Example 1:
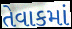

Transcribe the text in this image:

તેવાકમાં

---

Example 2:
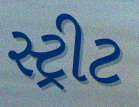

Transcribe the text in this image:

સ્ટ્રીટ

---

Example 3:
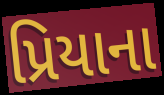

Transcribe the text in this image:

પ્રિયાના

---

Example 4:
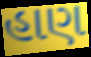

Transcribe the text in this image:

હાણ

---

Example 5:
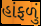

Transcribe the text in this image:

હાંફળું